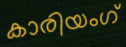
കാരിയംഗ്